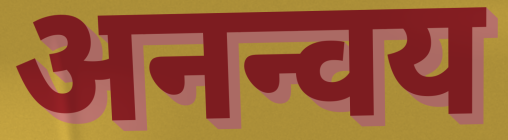
अनन्वय